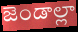
జెండాల్లా